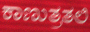
ಕಾಣುತ್ರತಲಿ